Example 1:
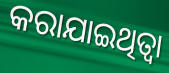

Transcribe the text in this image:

କରାଯାଇଥିତ୍ବା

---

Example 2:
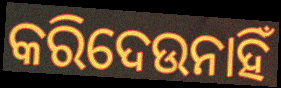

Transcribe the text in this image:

କରିଦେଉନାହିଁ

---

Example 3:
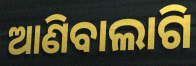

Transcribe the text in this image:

ଆଣିବାଲାଗି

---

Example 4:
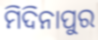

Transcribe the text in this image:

ମିଦିନାପୁର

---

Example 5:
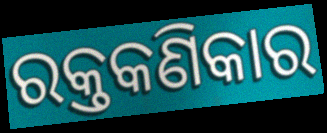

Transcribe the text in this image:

ରକ୍ତକଣିକାର